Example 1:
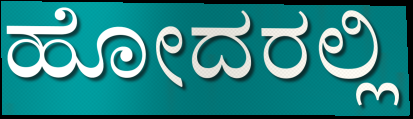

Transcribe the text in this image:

ಹೋದರಲ್ಲಿ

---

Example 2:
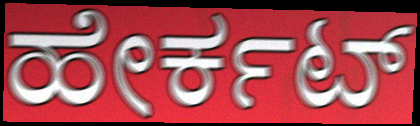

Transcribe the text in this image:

ಹೇರ್ಕಟ್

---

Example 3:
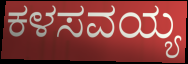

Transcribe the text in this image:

ಕಳಸವಯ್ಯ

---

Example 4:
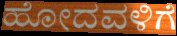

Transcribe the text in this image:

ಹೋದವಳಿಗೆ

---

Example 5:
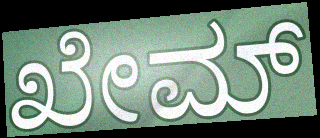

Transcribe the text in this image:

ಖೇಮ್